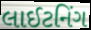
લાઈટનિંગ